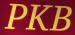
PKB